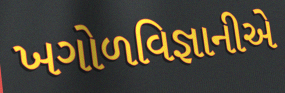
ખગોળવિજ્ઞાનીએ